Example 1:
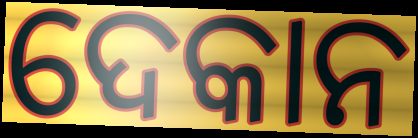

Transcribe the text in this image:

ଦେକାନ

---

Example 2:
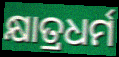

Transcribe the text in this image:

କ୍ଷାତ୍ରଧର୍ମ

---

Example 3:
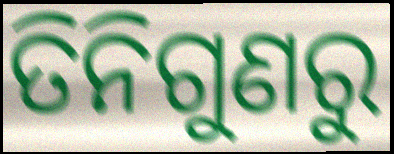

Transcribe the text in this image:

ତିନିଗୁଣରୁ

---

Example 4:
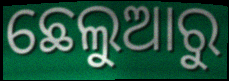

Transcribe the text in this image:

ଛେଲୁଆରୁ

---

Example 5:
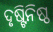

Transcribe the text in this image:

ଦୃଷ୍ଟିନିଷ୍ଠ